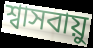
শ্বাসবায়ু